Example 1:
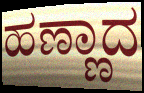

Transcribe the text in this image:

ಹಣ್ಣಾದ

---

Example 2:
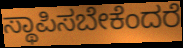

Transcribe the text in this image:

ಸ್ಥಾಪಿಸಬೇಕೆಂದರೆ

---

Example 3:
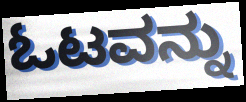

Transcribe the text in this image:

ಓಟವನ್ನು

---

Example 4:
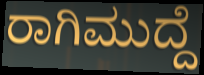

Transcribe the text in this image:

ರಾಗಿಮುದ್ದೆ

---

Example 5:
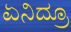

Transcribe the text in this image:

ಏನಿದ್ರೂ